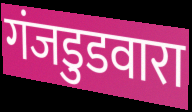
गंजडुडवारा